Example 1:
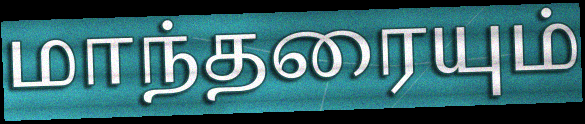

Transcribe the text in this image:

மாந்தரையும்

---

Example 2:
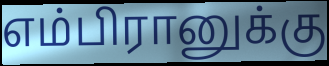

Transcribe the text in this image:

எம்பிரானுக்கு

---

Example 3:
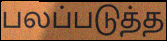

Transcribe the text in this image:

பலப்படுத்த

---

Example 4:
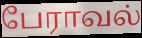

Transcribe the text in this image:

பேராவல்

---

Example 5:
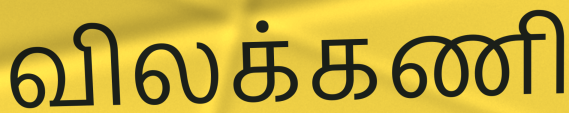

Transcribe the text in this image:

விலக்கணி